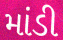
માંડી